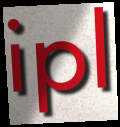
ipl